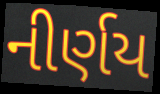
નીર્ણય